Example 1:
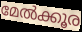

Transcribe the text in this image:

മേൽക്കൂര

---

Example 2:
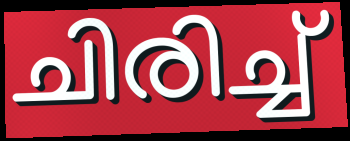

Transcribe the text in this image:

ചിരിച്ച്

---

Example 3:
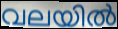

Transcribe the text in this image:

വലയിൽ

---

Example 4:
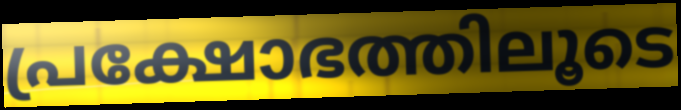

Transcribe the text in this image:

പ്രക്ഷോഭത്തിലൂടെ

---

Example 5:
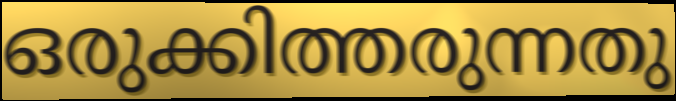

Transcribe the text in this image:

ഒരുക്കിത്തരുന്നതു